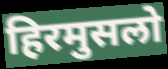
हिरमुसलो